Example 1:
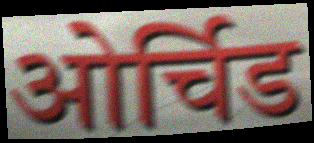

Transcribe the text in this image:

ओर्चिड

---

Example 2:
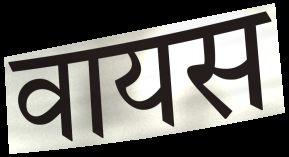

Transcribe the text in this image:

वायस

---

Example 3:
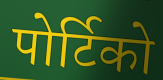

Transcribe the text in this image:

पोर्टिको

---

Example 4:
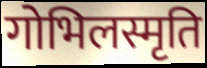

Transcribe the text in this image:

गोभिलस्मृति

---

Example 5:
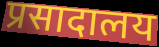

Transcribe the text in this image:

प्रसादालय